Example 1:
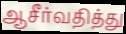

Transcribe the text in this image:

ஆசீர்வதித்து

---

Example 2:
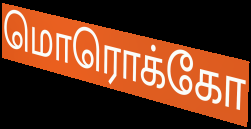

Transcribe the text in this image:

மொரொக்கோ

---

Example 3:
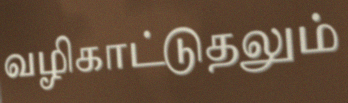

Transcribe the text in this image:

வழிகாட்டுதலும்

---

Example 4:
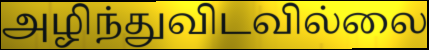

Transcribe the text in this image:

அழிந்துவிடவில்லை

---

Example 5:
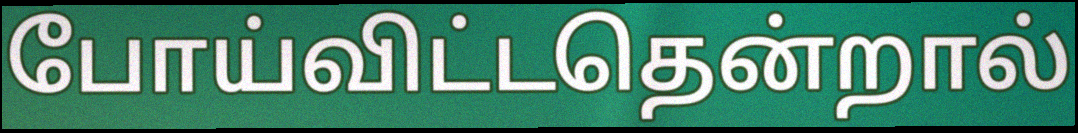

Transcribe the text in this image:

போய்விட்டதென்றால்